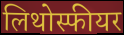
लिथोस्फीयर